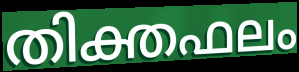
തിക്തഫലം